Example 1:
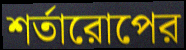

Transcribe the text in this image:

শর্তারোপের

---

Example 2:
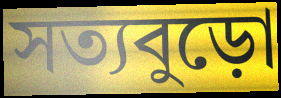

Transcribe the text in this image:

সত্যবুড়ো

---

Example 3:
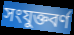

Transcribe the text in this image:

সংযুক্তবর্ণ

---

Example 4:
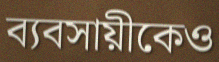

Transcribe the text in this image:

ব্যবসায়ীকেও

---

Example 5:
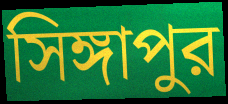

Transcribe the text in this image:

সিঙ্গাপুর